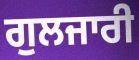
ਗੁਲਜਾਰੀ